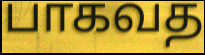
பாகவத